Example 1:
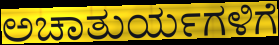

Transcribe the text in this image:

ಅಚಾತುರ್ಯಗಳಿಗೆ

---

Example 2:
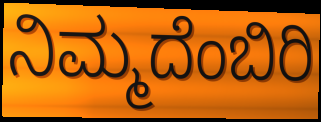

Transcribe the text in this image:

ನಿಮ್ಮದೆಂಬಿರಿ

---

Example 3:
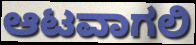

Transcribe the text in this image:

ಆಟವಾಗಲಿ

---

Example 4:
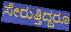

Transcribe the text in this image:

ಸೇರುತ್ತಿದ್ದರೂ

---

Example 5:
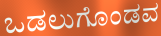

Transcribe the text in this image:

ಒಡಲುಗೊಂಡವ